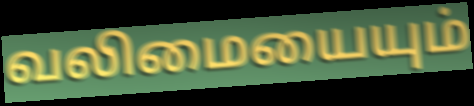
வலிமையையும்